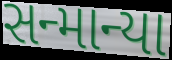
સન્માન્યા